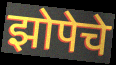
झोपेचे